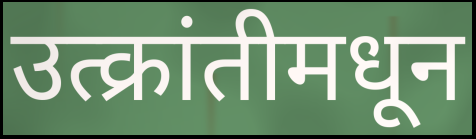
उत्क्रांतीमधून